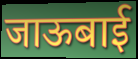
जाऊबाई